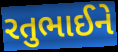
રતુભાઈને